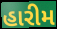
હારીમ